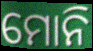
ମୋନି